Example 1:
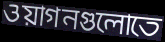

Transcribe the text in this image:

ওয়াগনগুলোতে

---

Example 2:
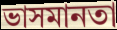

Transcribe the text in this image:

ভাসমানতা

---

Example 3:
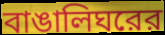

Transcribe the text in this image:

বাঙালিঘরের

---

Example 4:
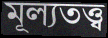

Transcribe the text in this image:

মূল্যতত্ত্ব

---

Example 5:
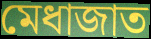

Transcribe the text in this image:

মেধাজাত